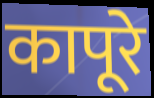
कापूरे